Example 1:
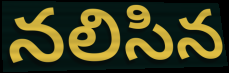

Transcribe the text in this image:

నలిసిన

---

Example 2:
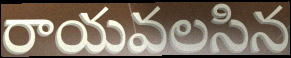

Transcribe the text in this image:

రాయవలసిన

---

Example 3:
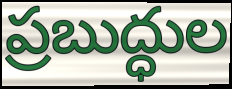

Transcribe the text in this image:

ప్రబుద్ధుల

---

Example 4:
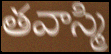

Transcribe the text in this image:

తవాస్మి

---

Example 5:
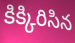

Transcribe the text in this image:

కిక్కిరిసిన